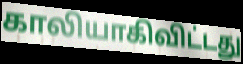
காலியாகிவிட்டது